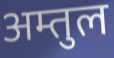
अम्तुल